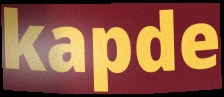
kapde